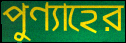
পুণ্যাহের